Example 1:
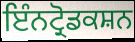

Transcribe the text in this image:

ਇੰਨਟ੍ਰੋਡਕਸ਼ਨ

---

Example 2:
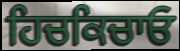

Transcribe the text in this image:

ਹਿਚਕਿਚਾਓ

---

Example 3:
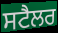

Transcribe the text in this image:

ਸਟੈਲਰ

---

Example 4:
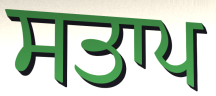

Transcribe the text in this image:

ਸਤਾਪ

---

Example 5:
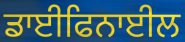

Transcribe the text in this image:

ਡਾਈਫਿਨਾਈਲ